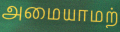
அமையாமற்